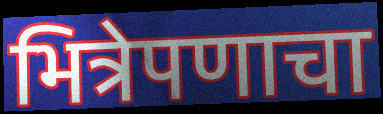
भित्रेपणाचा